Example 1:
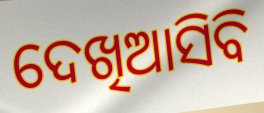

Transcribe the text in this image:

ଦେଖିଆସିବି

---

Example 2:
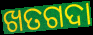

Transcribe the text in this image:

ଖତଗଦା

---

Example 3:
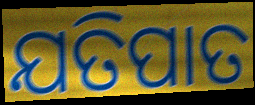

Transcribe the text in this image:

ଯତିପାତ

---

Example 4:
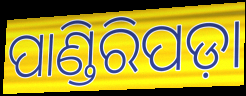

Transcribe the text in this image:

ପାଣ୍ଡିରିପଡ଼ା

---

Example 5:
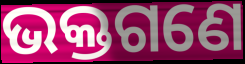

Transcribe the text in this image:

ଭକ୍ତଗଣେ